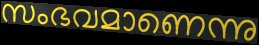
സംഭവമാണെന്നു